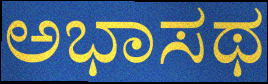
ಅಭಾಸಥ